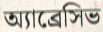
অ্যাব্রেসিভ